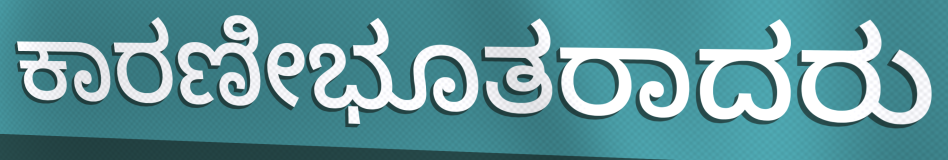
ಕಾರಣೀಭೂತರಾದರು